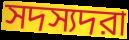
সদস্যদরা